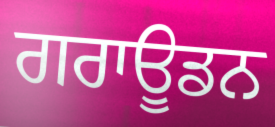
ਗਰਾਊਡਨ